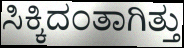
ಸಿಕ್ಕಿದಂತಾಗಿತ್ತು